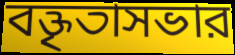
বক্তৃতাসভার